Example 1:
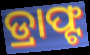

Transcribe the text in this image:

ଡ୍ରାଫ୍ଟ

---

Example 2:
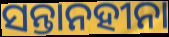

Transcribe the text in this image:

ସନ୍ତାନହୀନା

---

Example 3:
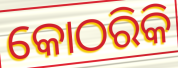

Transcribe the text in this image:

କୋଠରିକି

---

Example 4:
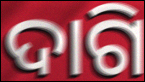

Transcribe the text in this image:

ଦାଗି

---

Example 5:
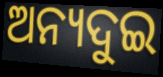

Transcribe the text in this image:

ଅନ୍ୟଦୁଇ